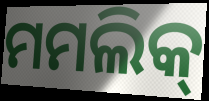
ମମଲିକ୍